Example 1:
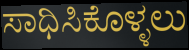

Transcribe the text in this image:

ಸಾಧಿಸಿಕೊಳ್ಳಲು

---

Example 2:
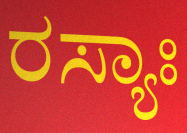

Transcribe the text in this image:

ರಸ್ಯಾಃ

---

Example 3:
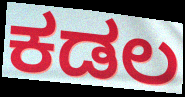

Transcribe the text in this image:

ಕಡಲ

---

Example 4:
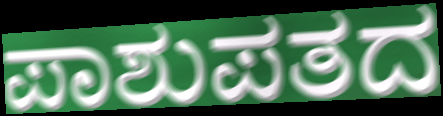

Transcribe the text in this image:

ಪಾಶುಪತದ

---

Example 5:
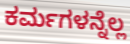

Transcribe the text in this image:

ಕರ್ಮಗಳನ್ನೆಲ್ಲ